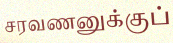
சரவணனுக்குப்